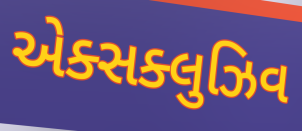
એક્સક્લુઝિવ